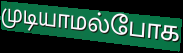
முடியாமல்போக